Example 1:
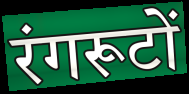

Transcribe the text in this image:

रंगरूटों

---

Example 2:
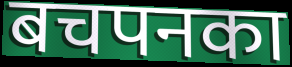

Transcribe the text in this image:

बचपनका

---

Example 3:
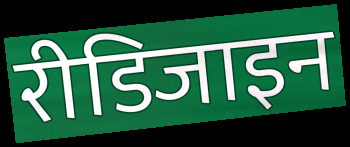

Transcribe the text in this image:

रीडिजाइन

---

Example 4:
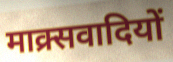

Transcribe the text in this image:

माक्र्सवादियों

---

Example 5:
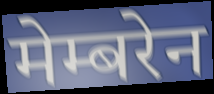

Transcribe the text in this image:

मेम्बरेन